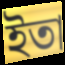
ইতা